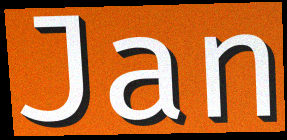
Jan